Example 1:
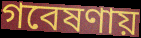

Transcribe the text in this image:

গবেষণায়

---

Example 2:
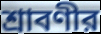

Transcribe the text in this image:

শ্রাবণীর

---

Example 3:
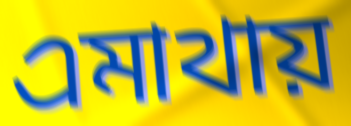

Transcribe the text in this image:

এমাথায়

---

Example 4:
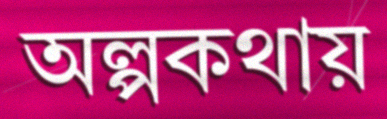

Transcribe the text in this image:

অল্পকথায়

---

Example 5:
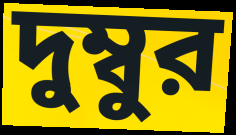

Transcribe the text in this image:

দুম্বুর